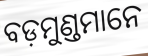
ବଡ଼ମୁଣ୍ଡମାନେ